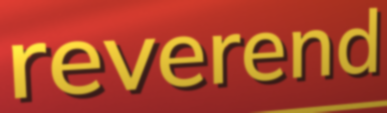
reverend